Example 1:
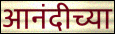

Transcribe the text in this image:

आनंदीच्या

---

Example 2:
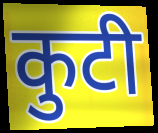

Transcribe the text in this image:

कुटी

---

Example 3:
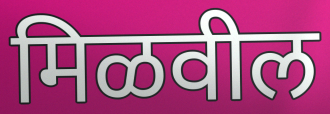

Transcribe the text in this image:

मिळवील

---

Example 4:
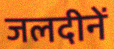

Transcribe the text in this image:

जलदीनें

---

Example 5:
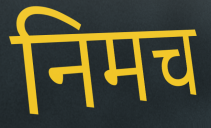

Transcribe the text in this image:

निमच